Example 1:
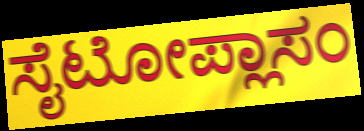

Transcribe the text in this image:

ಸೈಟೋಪ್ಲಾಸಂ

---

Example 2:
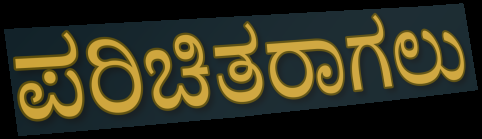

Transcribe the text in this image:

ಪರಿಚಿತರಾಗಲು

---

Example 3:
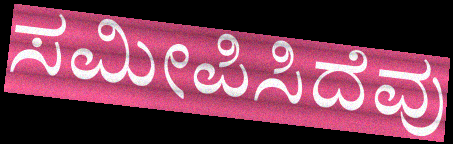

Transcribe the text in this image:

ಸಮೀಪಿಸಿದೆವು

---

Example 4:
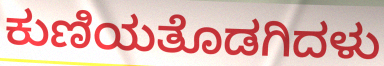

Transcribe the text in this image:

ಕುಣಿಯತೊಡಗಿದಳು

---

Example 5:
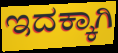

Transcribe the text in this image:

ಇದಕ್ಕಾಗಿ